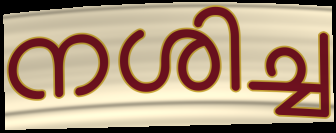
നശിച്ച